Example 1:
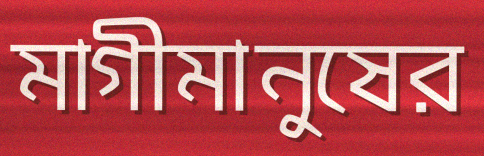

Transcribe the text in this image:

মাগীমানুষের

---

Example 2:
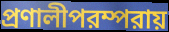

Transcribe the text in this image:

প্রণালীপরম্পরায়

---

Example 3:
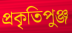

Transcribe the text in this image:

প্রকৃতিপুঞ্জ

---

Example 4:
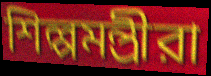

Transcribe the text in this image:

শিল্পমন্ত্রীরা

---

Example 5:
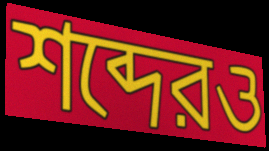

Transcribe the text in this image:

শব্দেরও